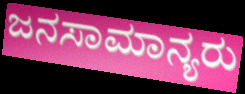
ಜನಸಾಮಾನ್ಯರು